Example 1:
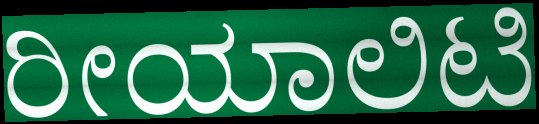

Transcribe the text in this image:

ರೀಯಾಲಿಟಿ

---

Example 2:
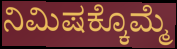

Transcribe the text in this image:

ನಿಮಿಷಕ್ಕೊಮ್ಮೆ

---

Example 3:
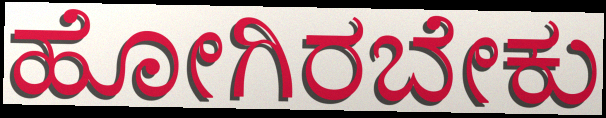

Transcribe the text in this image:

ಹೋಗಿರಬೇಕು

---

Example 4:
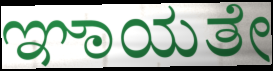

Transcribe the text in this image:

ಞಾಯತೇ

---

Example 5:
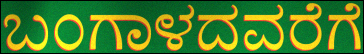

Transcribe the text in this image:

ಬಂಗಾಳದವರೆಗೆ